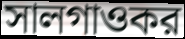
সালগাওকর